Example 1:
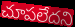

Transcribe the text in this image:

చూపలేదని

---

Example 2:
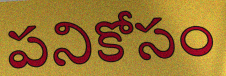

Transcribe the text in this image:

పనికోసం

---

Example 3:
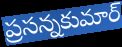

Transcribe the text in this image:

ప్రసన్నకుమార్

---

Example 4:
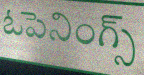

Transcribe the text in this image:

ఓపెనింగ్స్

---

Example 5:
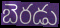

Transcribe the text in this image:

బెరడు